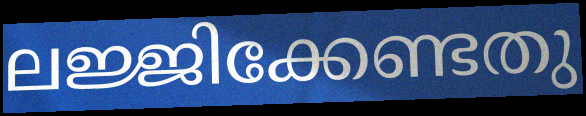
ലജ്ജിക്കേണ്ടതു